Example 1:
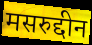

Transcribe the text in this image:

मसरुद्दीन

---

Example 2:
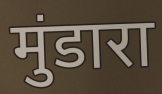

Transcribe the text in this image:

मुंडारा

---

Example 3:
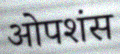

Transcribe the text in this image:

ओपशंस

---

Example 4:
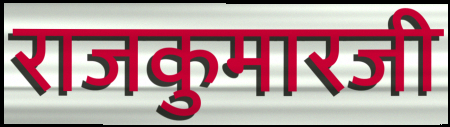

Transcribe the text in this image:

राजकुमारजी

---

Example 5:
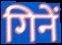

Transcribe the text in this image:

गिनें